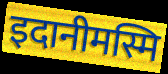
इदानीमस्मि